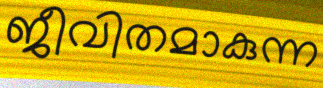
ജീവിതമാകുന്ന